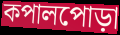
কপালপোড়া